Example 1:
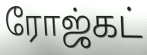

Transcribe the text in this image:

ரோஜ்கட்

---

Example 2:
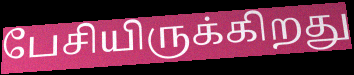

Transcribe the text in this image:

பேசியிருக்கிறது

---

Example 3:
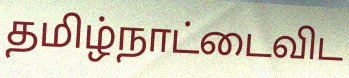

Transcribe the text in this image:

தமிழ்நாட்டைவிட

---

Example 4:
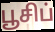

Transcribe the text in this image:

பூசிப்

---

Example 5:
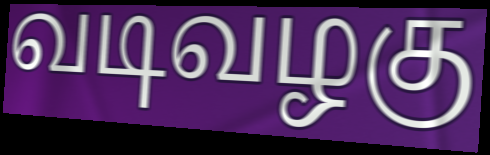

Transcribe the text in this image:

வடிவழகு